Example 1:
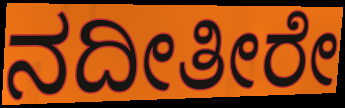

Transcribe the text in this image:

ನದೀತೀರೇ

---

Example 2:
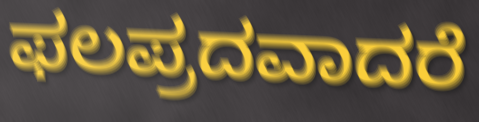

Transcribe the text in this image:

ಫಲಪ್ರದವಾದರೆ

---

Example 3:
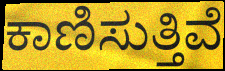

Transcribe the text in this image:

ಕಾಣಿಸುತ್ತಿವೆ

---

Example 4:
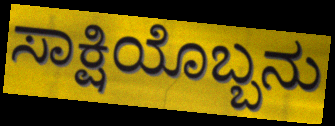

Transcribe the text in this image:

ಸಾಕ್ಷಿಯೊಬ್ಬನು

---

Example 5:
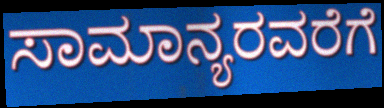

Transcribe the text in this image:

ಸಾಮಾನ್ಯರವರೆಗೆ